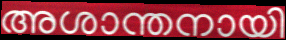
അശാന്തനായി